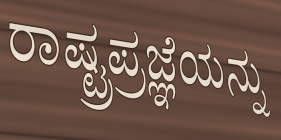
ರಾಷ್ಟ್ರಪ್ರಜ್ಞೆಯನ್ನು